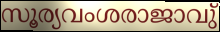
സൂര്യവംശരാജാവു്